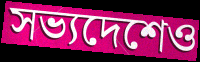
সভ্যদেশেও